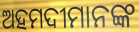
ଅହମଦୀମାନଙ୍କ